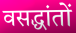
वसद्धांतों